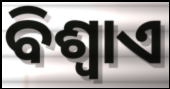
ବିଶ୍ୱାଏ